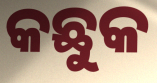
କଛୁକ